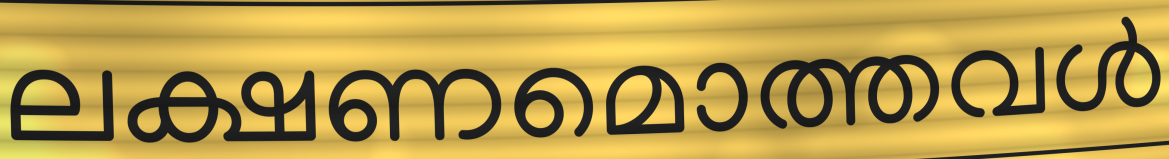
ലക്ഷണമൊത്തവൾ